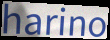
harino